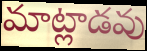
మాట్లాడవు